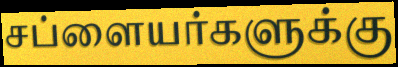
சப்ளையர்களுக்கு